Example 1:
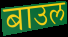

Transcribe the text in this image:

बाउल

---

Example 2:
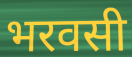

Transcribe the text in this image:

भरवसी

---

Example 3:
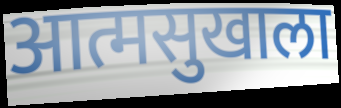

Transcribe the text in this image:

आत्मसुखाला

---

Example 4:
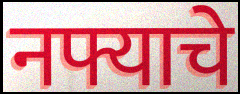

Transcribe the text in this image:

नफ्याचे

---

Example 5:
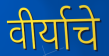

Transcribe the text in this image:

वीर्याचे